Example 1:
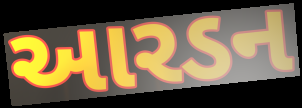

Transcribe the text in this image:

આરડન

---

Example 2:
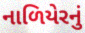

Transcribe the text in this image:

નાળિયેરનું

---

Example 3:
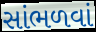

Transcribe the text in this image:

સાંભળવાં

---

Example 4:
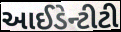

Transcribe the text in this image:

આઈડેન્ટીટી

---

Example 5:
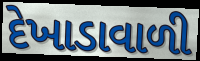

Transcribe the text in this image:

દેખાડાવાળી